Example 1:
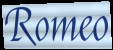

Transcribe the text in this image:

Romeo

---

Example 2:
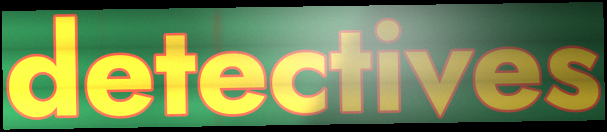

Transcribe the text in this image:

detectives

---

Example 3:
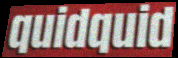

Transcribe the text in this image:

quidquid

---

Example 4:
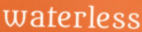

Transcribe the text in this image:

waterless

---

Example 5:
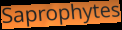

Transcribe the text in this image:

Saprophytes